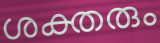
ശക്തരും